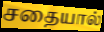
சதையால்